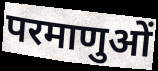
परमाणुओं